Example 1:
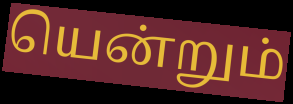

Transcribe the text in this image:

யென்றும்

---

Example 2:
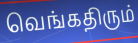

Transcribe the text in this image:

வெங்கதிரும்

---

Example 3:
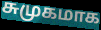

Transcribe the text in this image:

சுமுகமாக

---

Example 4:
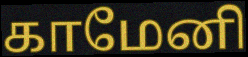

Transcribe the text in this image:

காமேனி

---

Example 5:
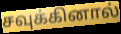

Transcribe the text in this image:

சவுக்கினால்